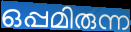
ഒപ്പമിരുന്ന